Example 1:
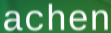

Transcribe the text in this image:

achen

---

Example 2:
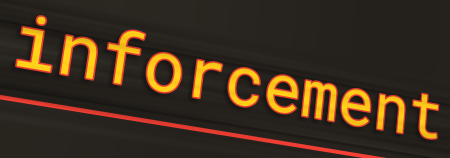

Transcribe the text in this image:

inforcement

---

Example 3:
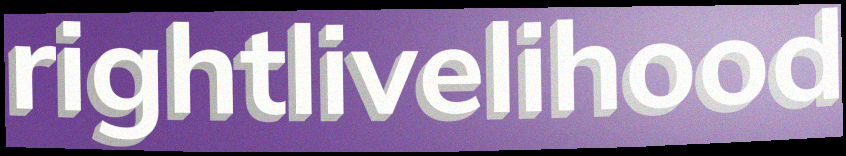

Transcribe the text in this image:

rightlivelihood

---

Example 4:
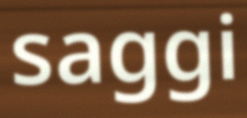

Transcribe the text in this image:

saggi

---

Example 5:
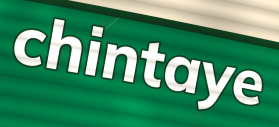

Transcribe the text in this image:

chintaye